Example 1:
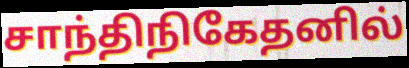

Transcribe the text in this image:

சாந்திநிகேதனில்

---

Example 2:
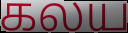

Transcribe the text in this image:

கலய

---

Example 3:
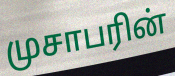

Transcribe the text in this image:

முசாபரின்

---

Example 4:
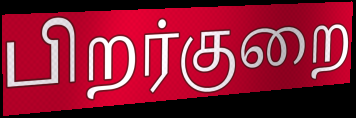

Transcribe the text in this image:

பிறர்குறை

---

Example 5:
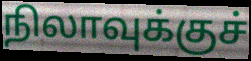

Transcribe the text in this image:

நிலாவுக்குச்